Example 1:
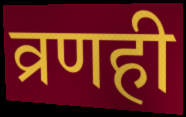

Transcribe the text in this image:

व्रणही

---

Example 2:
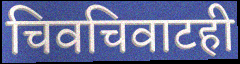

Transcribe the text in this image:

चिवचिवाटही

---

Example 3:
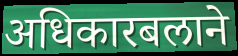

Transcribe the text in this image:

अधिकारबलाने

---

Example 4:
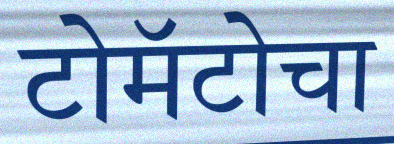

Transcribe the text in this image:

टोमॅटोचा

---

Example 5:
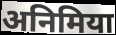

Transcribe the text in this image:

अनिमिया